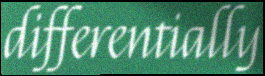
differentially